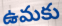
ఉమకు